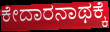
ಕೇದಾರನಾಥಕ್ಕೆ